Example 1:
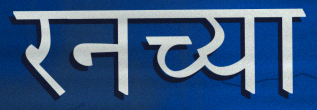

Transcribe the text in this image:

रनच्या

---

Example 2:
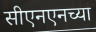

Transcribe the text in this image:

सीएनएनच्या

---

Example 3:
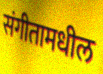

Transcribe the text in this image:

संगीतामधील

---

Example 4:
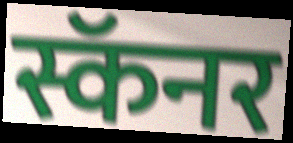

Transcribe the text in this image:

स्कॅनर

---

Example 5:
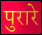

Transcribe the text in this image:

पुरारे